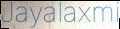
Jayalaxmi